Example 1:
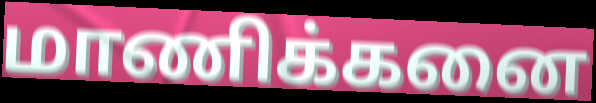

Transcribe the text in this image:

மாணிக்கனை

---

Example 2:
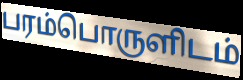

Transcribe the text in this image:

பரம்பொருளிடம்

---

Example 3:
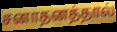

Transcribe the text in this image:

சனாதனத்தால்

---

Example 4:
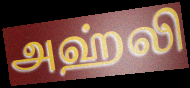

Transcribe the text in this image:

அஹ்லி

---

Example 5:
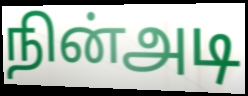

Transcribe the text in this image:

நின்அடி